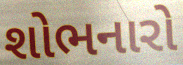
શોભનારો